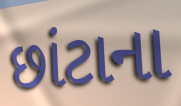
છાંટાના